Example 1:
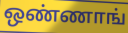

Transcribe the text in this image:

ஒண்ணாங்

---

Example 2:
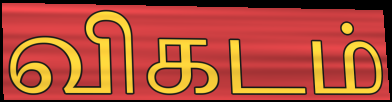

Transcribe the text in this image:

விகடம்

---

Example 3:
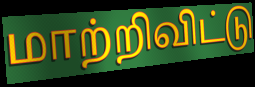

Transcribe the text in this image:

மாற்றிவிட்டு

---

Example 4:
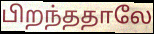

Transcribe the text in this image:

பிறந்ததாலே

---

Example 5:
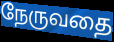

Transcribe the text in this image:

நேருவதை